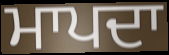
ਮਾਪਦਾ